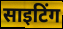
साइटिंग